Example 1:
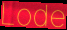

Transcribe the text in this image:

Lode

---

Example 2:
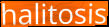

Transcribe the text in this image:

halitosis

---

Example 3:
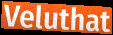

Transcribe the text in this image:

Veluthat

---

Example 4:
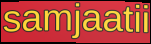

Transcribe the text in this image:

samjaatii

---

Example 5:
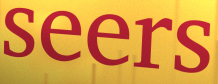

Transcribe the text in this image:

seers